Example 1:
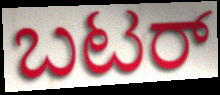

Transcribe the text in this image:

ಬಟರ್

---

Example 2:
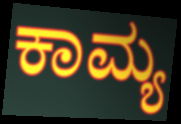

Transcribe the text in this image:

ಕಾಮ್ಯ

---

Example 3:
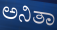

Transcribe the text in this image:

ಅನಿತಾ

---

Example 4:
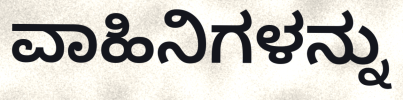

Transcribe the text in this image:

ವಾಹಿನಿಗಳನ್ನು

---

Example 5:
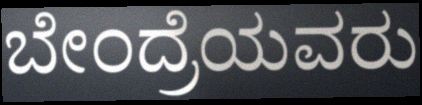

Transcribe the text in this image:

ಬೇಂದ್ರೆಯವರು